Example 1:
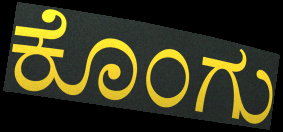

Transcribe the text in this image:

ಕೊಂಗು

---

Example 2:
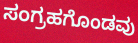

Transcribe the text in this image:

ಸಂಗ್ರಹಗೊಂಡವು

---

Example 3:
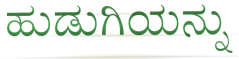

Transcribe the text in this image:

ಹುಡುಗಿಯನ್ನು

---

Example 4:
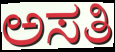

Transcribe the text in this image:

ಅಸತಿ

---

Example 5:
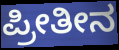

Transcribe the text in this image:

ಪ್ರೀತೀನ